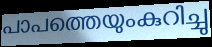
പാപത്തെയുംകുറിച്ചു